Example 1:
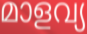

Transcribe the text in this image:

മാളവ്യ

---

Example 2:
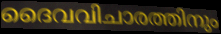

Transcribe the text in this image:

ദൈവവിചാരത്തിനും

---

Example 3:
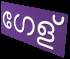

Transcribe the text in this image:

ഗേള്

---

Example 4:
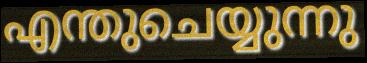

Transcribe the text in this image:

എന്തുചെയ്യുന്നു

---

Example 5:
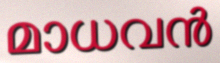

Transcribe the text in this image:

മാധവൻ